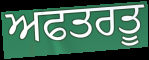
ਅਫਤਰਤੂ